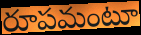
రూపమంటూ